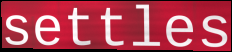
settles